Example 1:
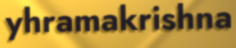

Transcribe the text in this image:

yhramakrishna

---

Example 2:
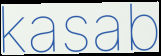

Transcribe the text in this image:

kasab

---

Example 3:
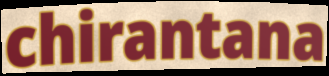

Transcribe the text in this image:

chirantana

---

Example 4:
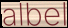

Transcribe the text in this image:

albel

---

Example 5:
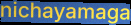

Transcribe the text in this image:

nichayamaga